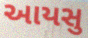
આયસુ